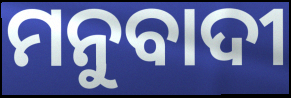
ମନୁବାଦୀ